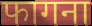
फागना